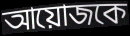
আয়োজকে